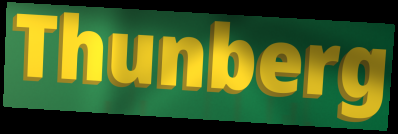
Thunberg